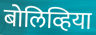
बोलिव्हिया